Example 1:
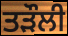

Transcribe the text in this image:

ਤੜੌਲੀ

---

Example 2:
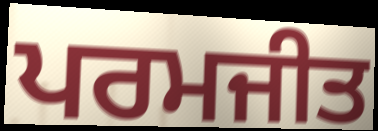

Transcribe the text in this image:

ਪਰਮਜੀਤ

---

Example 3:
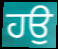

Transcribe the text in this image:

ਹਉ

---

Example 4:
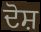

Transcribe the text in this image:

ਦੋਸ਼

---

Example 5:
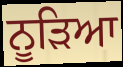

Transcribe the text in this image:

ਨੂੜਿਆ